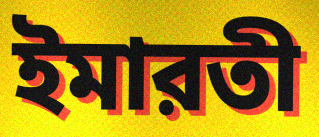
ইমারতী